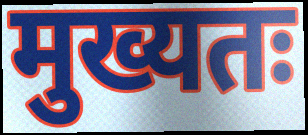
मुख्यतः